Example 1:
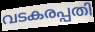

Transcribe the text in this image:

വടകരപ്പതി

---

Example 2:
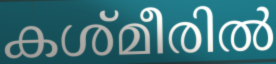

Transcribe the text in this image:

കശ്മീരിൽ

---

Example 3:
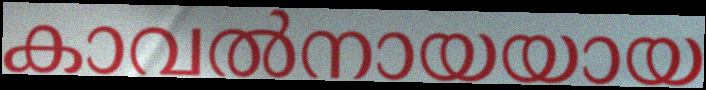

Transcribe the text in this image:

കാവൽനായയായ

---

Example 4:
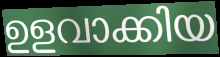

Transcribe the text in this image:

ഉളവാക്കിയ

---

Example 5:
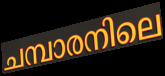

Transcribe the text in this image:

ചമ്പാരനിലെ